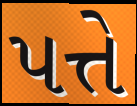
પત્તે